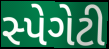
સ્પેગેટી